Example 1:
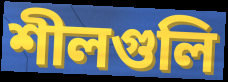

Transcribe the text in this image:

শীলগুলি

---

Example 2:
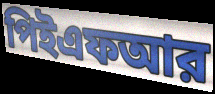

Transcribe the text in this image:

পিইএফআর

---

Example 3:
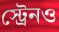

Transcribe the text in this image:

স্ট্রেনও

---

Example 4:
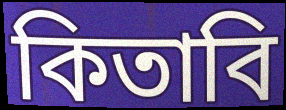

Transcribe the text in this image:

কিতাবি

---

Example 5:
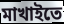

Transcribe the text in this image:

মাখাইতে